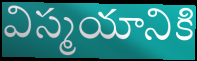
విస్మయానికి